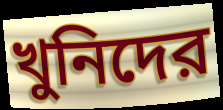
খুনিদের